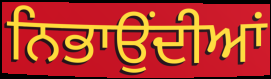
ਨਿਭਾਉਂਦੀਆਂ